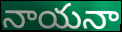
నాయనా